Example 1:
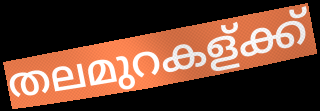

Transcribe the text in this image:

തലമുറകള്ക്ക്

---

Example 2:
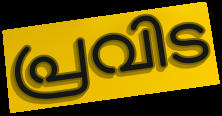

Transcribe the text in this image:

പ്രവിട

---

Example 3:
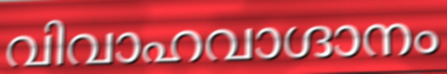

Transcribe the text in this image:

വിവാഹവാഗ്ദാനം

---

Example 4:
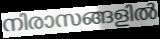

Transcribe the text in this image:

നിരാസങ്ങളിൽ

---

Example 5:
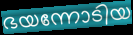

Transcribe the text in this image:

ഭയന്നോടിയ